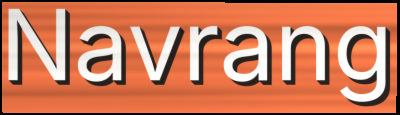
Navrang